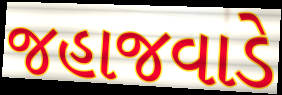
જહાજવાડે